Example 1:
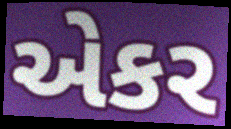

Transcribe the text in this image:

એકર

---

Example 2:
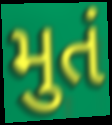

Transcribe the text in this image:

મુતં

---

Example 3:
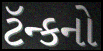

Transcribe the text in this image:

ટૅન્કનો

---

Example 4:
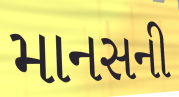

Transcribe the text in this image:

માનસની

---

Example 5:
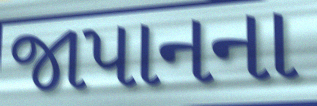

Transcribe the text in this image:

જાપાનના